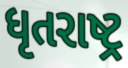
ધૃતરાષ્ટ્ર